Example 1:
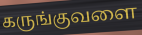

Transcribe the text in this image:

கருங்குவளை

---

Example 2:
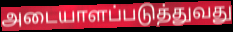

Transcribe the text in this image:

அடையாளப்படுத்துவது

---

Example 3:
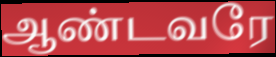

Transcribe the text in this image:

ஆண்டவரே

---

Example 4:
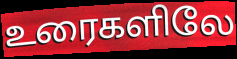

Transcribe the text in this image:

உரைகளிலே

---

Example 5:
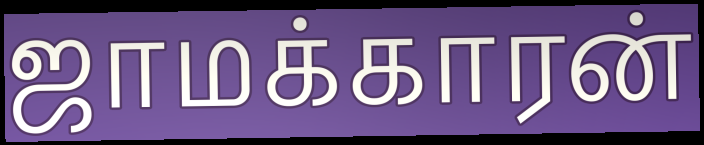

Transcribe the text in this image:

ஜாமக்காரன்